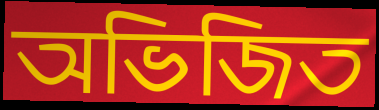
অভিজিত